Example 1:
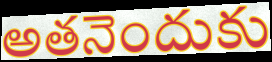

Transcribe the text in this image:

అతనెందుకు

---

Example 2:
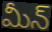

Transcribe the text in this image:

మీన్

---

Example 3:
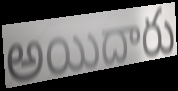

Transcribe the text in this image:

అయిదారు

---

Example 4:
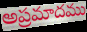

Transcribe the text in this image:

అప్రమాదము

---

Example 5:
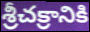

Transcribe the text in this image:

శ్రీచక్రానికి